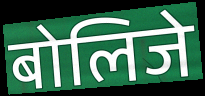
बोलिजे